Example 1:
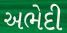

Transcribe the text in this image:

અભેદી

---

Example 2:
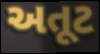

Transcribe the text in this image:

અતૂટ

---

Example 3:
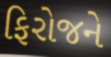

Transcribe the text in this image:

ફિરોજને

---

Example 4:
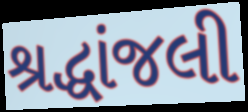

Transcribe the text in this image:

શ્રદ્ધાંજલી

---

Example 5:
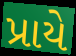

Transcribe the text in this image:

પ્રાયે